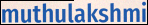
muthulakshmi